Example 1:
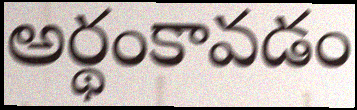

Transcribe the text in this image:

అర్థంకావడం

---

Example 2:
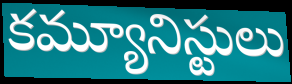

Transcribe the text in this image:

కమ్యూనిస్టులు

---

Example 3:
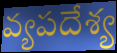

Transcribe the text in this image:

వ్యపదేశ్య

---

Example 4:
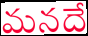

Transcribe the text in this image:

మనదే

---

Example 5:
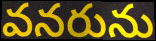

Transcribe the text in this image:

వనరును